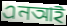
এনআই